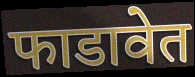
फाडावेत